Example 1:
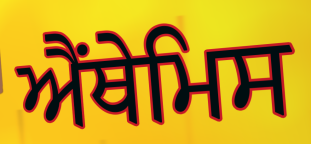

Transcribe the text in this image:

ਐਂਥੇਮਿਸ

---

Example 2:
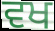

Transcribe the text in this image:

ਵਖ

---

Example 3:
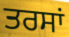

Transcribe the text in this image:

ਤਰਸਾਂ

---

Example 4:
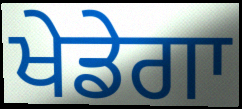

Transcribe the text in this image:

ਖੇਡੇਗਾ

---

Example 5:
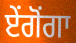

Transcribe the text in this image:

ਏਂਗੋਂਗਾ